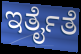
ಇರ್ತೈತೆ